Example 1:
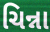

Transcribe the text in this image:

ચિન્ના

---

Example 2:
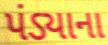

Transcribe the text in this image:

પંડ્યાના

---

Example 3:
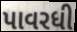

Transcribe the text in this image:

પાવરધી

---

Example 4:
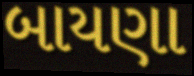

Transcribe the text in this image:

બાયણા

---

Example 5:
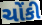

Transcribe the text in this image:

ચોંકી